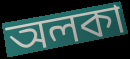
অলকা